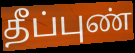
தீப்புண்